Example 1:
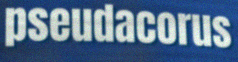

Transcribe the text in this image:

pseudacorus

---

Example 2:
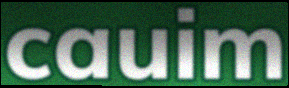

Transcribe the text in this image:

cauim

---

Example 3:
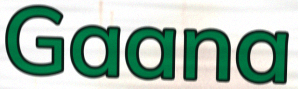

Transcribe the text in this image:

Gaana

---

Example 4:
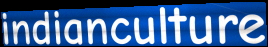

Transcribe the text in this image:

indianculture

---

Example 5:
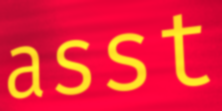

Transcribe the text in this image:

asst